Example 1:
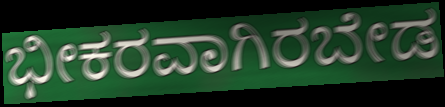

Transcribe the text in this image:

ಭೀಕರವಾಗಿರಬೇಡ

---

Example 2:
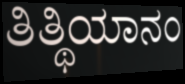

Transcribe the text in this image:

ತಿತ್ಥಿಯಾನಂ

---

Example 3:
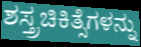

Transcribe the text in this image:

ಶಸ್ತ್ರಚಿಕಿತ್ಸೆಗಳನ್ನು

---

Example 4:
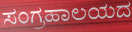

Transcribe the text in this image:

ಸಂಗ್ರಹಾಲಯದ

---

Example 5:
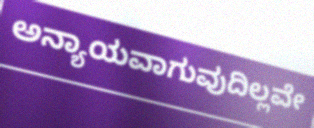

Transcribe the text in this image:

ಅನ್ಯಾಯವಾಗುವುದಿಲ್ಲವೇ